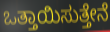
ಒತ್ತಾಯಿಸುತ್ತೇನೆ